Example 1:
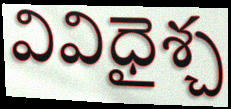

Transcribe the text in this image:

వివిధైశ్చ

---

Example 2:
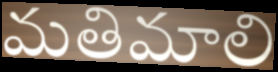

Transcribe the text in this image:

మతిమాలి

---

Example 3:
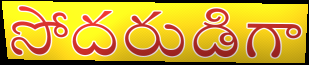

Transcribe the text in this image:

సోదరుడిగా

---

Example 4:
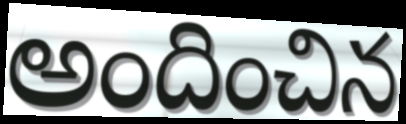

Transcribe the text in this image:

అందించిన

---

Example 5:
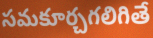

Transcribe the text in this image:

సమకూర్చగలిగితే